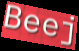
Beej